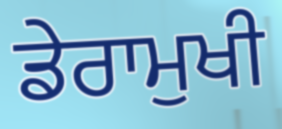
ਡੇਰਾਮੁਖੀ